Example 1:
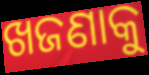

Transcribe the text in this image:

ଖଜଣାକୁ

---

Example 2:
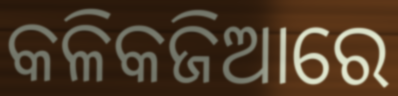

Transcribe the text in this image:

କଳିକଜିଆରେ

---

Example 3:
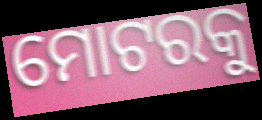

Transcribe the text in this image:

ମୋଟରକୁ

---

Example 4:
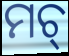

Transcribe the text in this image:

ମଚ୍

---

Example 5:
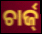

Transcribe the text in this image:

ଚାର୍ଜ୍